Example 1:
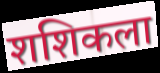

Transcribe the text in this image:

शशिकला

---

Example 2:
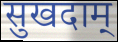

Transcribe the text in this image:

सुखदाम्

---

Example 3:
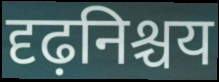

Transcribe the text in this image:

दृढ़निश्चय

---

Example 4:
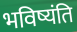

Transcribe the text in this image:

भविष्यंति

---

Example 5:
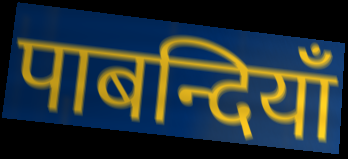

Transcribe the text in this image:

पाबन्दियाँ